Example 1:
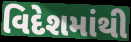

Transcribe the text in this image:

વિદેશમાંથી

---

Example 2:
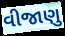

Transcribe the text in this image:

વીજાણુ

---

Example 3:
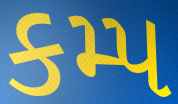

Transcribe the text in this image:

કમ્પ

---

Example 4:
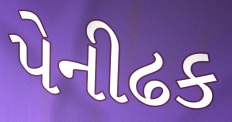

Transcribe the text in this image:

પેનીઢક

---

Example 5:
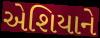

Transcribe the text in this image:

એશિયાને